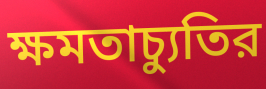
ক্ষমতাচ্যুতির